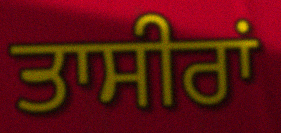
ਤਾਸੀਰਾਂ